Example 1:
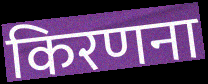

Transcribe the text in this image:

किरणना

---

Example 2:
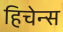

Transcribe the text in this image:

हिचेन्स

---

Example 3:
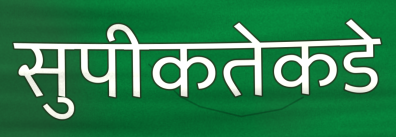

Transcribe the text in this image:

सुपीकतेकडे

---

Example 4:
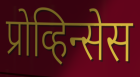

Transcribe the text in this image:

प्रोव्हिन्सेस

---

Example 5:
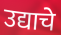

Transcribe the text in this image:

उद्याचे